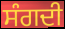
ਸੰਗਦੀ